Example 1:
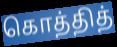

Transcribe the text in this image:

கொத்தித்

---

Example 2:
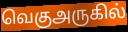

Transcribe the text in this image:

வெகுஅருகில்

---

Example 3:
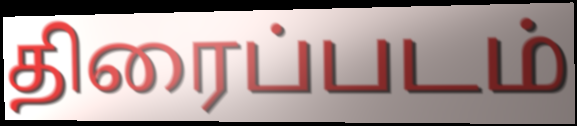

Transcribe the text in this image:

திரைப்படம்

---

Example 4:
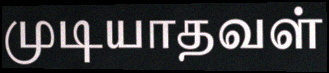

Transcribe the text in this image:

முடியாதவள்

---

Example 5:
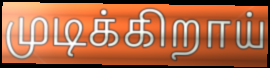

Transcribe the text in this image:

முடிக்கிறாய்